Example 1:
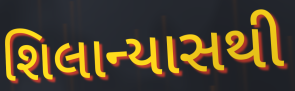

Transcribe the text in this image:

શિલાન્યાસથી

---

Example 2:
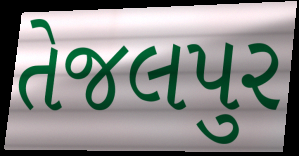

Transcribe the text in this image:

તેજલપુર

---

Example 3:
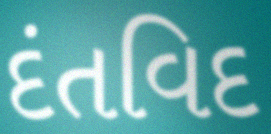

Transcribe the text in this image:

દંતવિદ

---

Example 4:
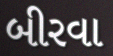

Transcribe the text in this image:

બીરવા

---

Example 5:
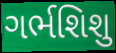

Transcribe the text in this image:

ગર્ભશિશુ